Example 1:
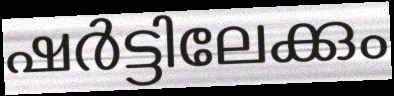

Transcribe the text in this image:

ഷർട്ടിലേക്കും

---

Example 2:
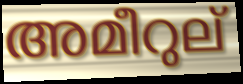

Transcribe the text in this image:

അമീറുല്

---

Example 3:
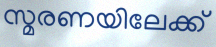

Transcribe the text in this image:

സ്മരണയിലേക്ക്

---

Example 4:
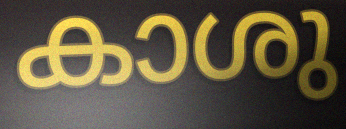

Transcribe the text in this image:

കാശു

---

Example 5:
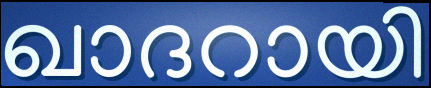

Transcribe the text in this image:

ഖാദറായി